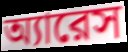
অ্যারেস